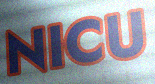
NICU